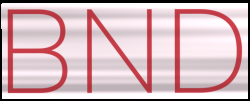
BND